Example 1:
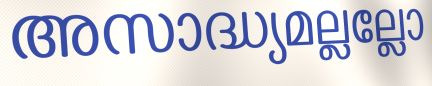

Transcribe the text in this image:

അസാദ്ധ്യമല്ലല്ലോ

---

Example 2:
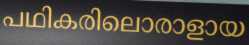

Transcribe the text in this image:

പഥികരിലൊരാളായ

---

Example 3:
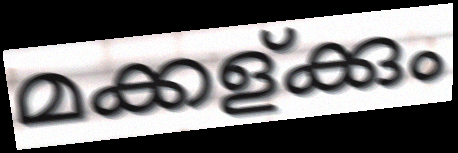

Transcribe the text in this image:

മക്കള്ക്കും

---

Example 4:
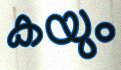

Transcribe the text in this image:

കയും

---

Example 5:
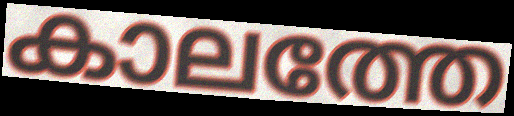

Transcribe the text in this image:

കാലത്തേ